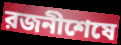
রজনীশেষে